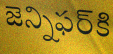
జెన్నిఫర్‌కి